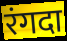
रंगदा